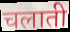
चलाती